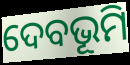
ଦେବଭୂମି